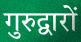
गुरुद्वारों